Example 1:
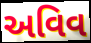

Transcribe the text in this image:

અવિવ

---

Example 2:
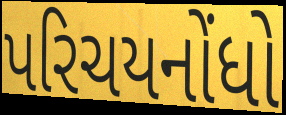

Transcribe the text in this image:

પરિચયનોંધો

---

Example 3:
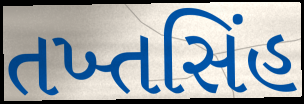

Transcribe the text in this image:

તખ્તસિંહ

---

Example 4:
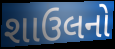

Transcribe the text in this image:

શાઉલનો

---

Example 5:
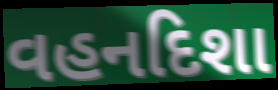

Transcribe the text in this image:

વહનદિશા